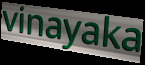
vinayaka